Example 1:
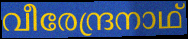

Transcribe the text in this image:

വീരേന്ദ്രനാഥ്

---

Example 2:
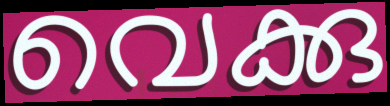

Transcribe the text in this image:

വെക്കു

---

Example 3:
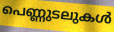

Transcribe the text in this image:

പെണ്ണുടലുകൾ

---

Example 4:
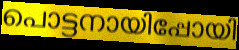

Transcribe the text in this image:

പൊട്ടനായിപ്പോയി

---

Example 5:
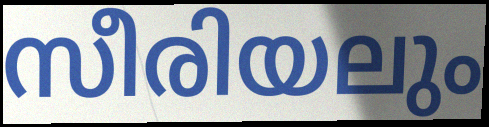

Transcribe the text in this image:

സീരിയലും